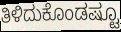
ತಿಳಿದುಕೊಂಡಷ್ಟೂ